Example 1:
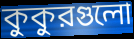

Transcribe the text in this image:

কুকুরগুলো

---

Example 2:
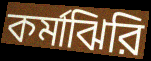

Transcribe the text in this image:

কর্মাঝিরি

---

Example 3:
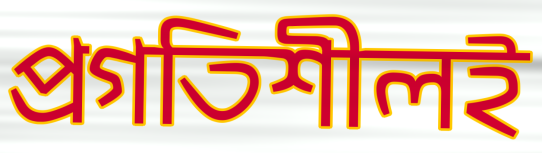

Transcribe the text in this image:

প্রগতিশীলই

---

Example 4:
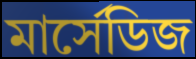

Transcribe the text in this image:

মার্সেডিজ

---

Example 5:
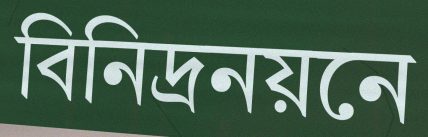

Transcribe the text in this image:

বিনিদ্রনয়নে